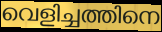
വെളിച്ചത്തിനെ